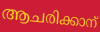
ആചരിക്കാന്